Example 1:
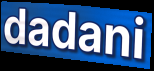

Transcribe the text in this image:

dadani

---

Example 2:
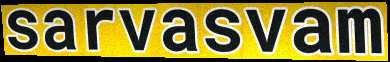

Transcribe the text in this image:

sarvasvam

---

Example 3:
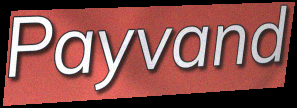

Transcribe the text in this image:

Payvand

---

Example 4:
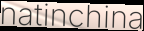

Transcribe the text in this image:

natinchina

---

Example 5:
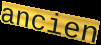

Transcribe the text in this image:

ancien